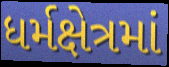
ધર્મક્ષેત્રમાં